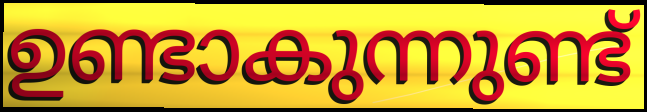
ഉണ്ടാകുന്നുണ്ട്